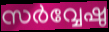
സർവ്വേഷു